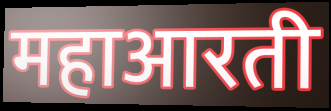
महाआरती